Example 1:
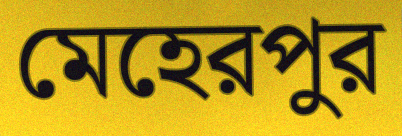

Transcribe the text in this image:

মেহেরপুর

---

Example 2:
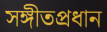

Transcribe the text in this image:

সঙ্গীতপ্রধান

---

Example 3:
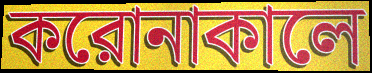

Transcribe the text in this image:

করোনাকালে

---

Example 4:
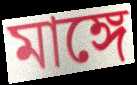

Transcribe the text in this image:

মাঙ্গে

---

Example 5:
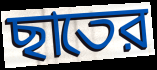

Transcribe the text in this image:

ছাতের